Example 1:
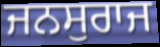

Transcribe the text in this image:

ਜਨਸੁਰਾਜ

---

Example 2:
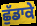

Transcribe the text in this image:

ਛੁੱਡਾਕੇ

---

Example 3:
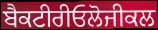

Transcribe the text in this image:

ਬੈਕਟੀਰੀਓਲੋਜੀਕਲ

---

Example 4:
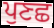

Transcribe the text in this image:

ਪੁਣਛ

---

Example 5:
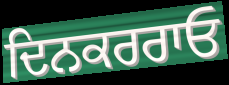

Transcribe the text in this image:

ਦਿਨਕਰਰਾਓ